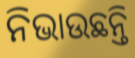
ନିଭାଉଛନ୍ତି